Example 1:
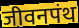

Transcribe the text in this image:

जीवनपंथ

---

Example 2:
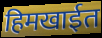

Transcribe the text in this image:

हिमखाईत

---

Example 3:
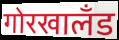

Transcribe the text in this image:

गोरखालॅंड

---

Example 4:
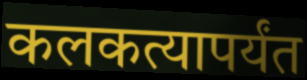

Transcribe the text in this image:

कलकत्यापर्यंत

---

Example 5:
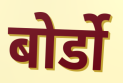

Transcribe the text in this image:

बोर्डो